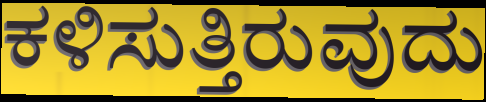
ಕಳಿಸುತ್ತಿರುವುದು